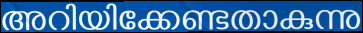
അറിയിക്കേണ്ടതാകുന്നു